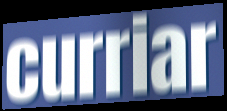
curriar